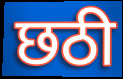
छठी